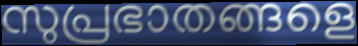
സുപ്രഭാതങ്ങളെ